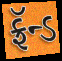
ફ્રૅન્ડ